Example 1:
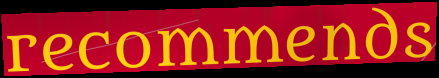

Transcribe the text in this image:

recommends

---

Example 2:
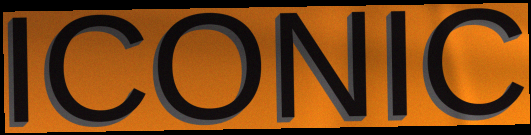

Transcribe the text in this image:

ICONIC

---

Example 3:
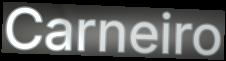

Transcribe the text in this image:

Carneiro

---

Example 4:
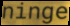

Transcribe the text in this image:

ninge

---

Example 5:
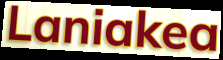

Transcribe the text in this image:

Laniakea